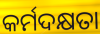
କର୍ମଦକ୍ଷତା